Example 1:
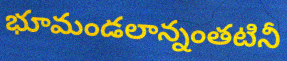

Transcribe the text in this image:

భూమండలాన్నంతటినీ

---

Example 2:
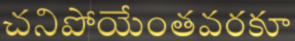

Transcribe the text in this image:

చనిపోయేంతవరకూ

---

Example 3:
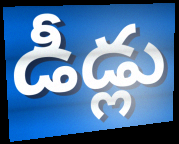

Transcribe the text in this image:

డీడ్లు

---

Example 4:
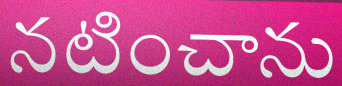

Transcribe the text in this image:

నటించాను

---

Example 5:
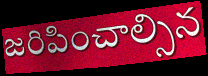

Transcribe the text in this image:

జరిపించాల్సిన